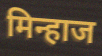
मिन्हाज